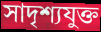
সাদৃশ্যযুক্ত